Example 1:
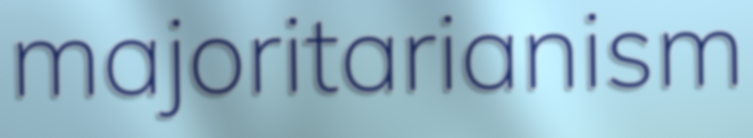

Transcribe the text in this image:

majoritarianism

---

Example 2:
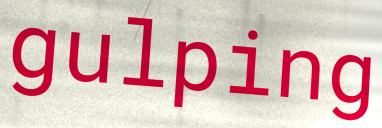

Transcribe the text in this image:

gulping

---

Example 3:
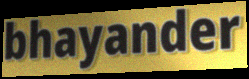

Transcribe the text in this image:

bhayander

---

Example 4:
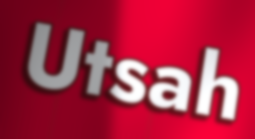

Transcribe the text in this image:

Utsah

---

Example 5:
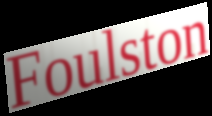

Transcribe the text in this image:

Foulston